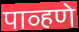
पाव्हणे